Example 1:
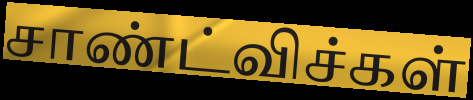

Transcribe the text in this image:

சாண்ட்விச்கள்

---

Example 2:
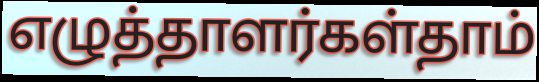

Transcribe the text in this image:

எழுத்தாளர்கள்தாம்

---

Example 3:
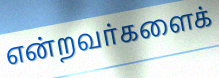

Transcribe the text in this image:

என்றவர்களைக்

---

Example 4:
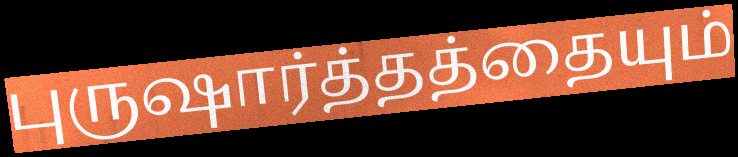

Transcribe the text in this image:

புருஷார்த்தத்தையும்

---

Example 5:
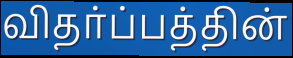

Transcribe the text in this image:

விதர்ப்பத்தின்